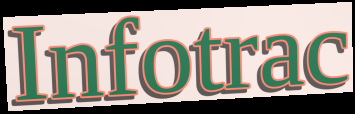
Infotrac